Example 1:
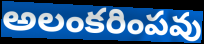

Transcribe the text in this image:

అలంకరింపవు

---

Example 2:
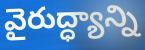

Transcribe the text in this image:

వైరుద్ధ్యాన్ని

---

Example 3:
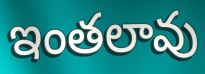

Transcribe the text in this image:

ఇంతలావు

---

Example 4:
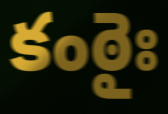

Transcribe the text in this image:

కంఠైః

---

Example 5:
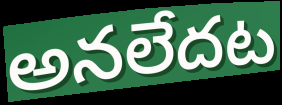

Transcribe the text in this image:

అనలేదట